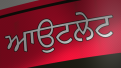
ਆਉਟਲੇਟ